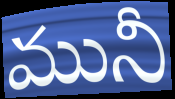
మునీ